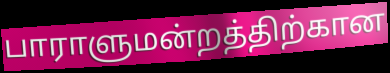
பாராளுமன்றத்திற்கான